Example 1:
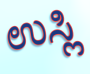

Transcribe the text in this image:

ಉಸ್ಲಿ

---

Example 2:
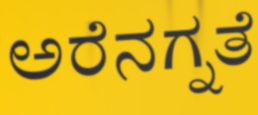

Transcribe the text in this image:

ಅರೆನಗ್ನತೆ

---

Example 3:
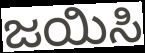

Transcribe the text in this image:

ಜಯಿಸಿ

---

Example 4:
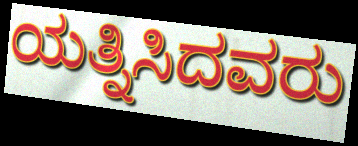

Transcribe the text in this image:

ಯತ್ನಿಸಿದವರು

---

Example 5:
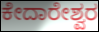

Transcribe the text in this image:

ಕೇದಾರೇಶ್ವರ